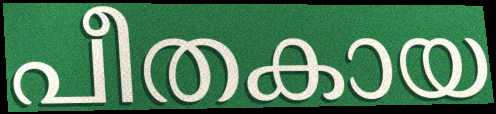
പീതകായ